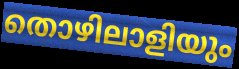
തൊഴിലാളിയും